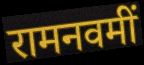
रामनवमीं